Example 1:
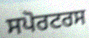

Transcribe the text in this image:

ਸਪੋਰਟਰਸ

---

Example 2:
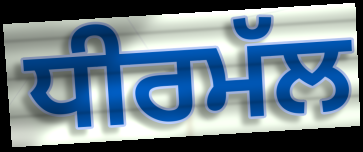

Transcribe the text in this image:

ਧੀਰਮੱਲ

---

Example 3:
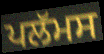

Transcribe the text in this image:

ਪਲੱਮਸ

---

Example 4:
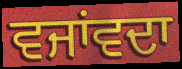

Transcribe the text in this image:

ਵਜਾਂਵਦਾ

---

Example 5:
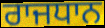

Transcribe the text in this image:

ਰਾਜਧਾਨ